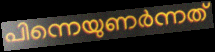
പിന്നെയുണർന്നത്